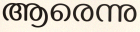
ആരെന്നു